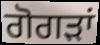
ਗੋਗੜਾਂ